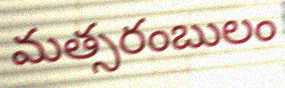
మత్సరంబులం